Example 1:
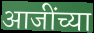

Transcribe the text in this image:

आजींच्या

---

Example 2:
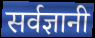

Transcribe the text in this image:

सर्वज्ञानी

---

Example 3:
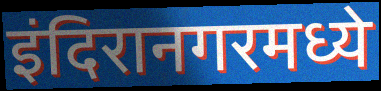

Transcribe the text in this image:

इंदिरानगरमध्ये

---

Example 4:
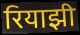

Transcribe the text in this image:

रियाझी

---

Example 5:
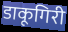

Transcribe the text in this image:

डाकूगिरी